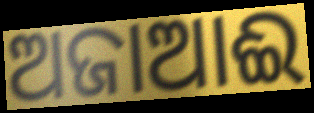
ଅଜାଆଈ